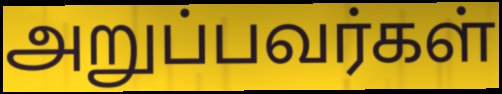
அறுப்பவர்கள்